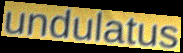
undulatus